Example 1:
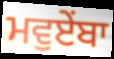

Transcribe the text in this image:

ਮਵੁਏਂਬਾ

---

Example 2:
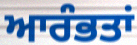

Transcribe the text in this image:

ਆਰੰਭਤਾਂ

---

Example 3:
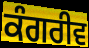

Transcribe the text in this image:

ਕੰਗਰੀਵ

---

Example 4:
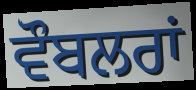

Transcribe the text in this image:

ਵੌਬਲਰਾਂ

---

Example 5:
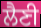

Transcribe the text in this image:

ਲੈਣੀ